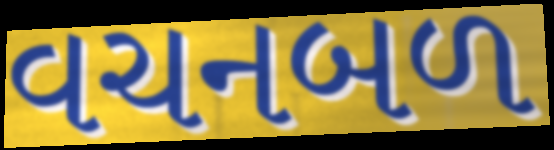
વચનબળ